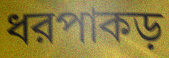
ধরপাকড়